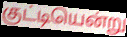
குட்டியென்று